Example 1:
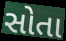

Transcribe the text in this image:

સોતા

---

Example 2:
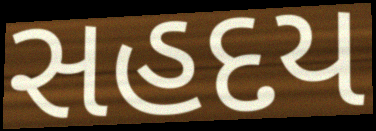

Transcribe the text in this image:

સહદય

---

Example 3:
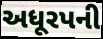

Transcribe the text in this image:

અધૂરપની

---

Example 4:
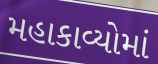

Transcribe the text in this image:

મહાકાવ્યોમાં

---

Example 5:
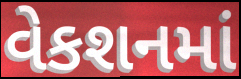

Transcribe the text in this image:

વેકશનમાં